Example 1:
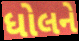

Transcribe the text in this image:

ધોલને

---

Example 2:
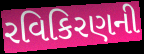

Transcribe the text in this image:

રવિકિરણની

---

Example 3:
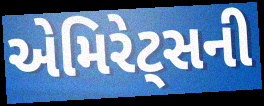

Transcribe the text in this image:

એમિરેટ્સની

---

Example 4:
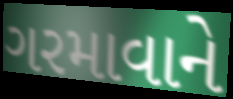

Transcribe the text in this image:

ગરમાવાને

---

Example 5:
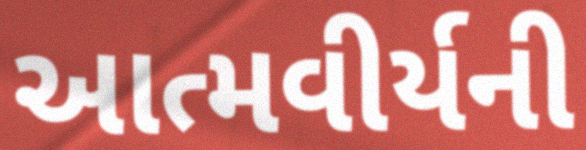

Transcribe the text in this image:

આત્મવીર્યની